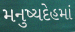
મનુષ્યદેહમાં